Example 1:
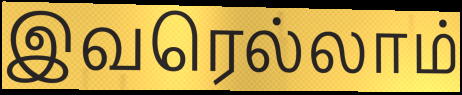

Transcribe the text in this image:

இவரெல்லாம்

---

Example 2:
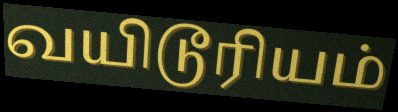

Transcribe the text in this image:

வயிடூரியம்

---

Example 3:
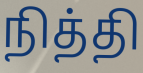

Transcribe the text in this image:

நித்தி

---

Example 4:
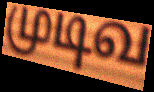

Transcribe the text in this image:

முடிவ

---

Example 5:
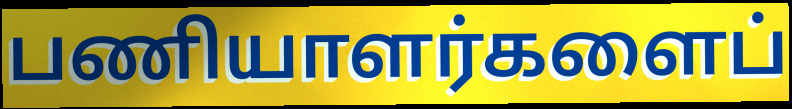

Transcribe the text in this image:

பணியாளர்களைப்